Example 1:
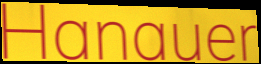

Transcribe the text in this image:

Hanauer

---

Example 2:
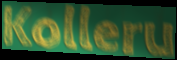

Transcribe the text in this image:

Kolleru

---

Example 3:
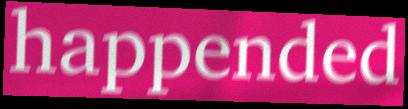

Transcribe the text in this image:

happended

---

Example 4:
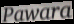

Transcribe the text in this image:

Pawara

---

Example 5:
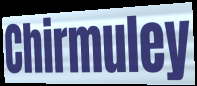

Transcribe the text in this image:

Chirmuley